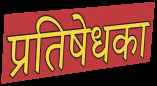
प्रतिषेधका